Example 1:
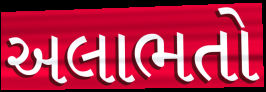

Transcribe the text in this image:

અલાભતો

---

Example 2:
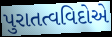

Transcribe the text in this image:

પુરાતત્વવિદોએ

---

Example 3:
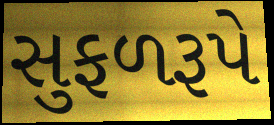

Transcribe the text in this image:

સુફળરૂપે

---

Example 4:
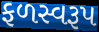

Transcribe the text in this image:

ફળસ્વરૂપ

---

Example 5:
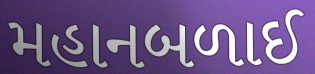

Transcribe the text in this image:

મહાનબળાઈ